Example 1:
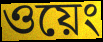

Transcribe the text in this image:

ওয়েং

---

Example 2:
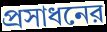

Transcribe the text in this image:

প্রসাধনের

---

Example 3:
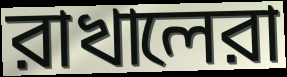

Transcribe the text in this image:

রাখালেরা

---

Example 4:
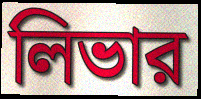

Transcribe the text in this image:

লিভার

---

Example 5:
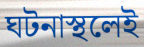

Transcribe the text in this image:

ঘটনাস্থলেই